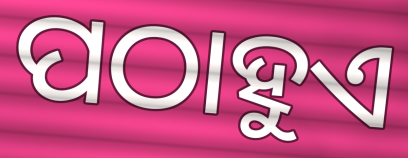
ପଠାହୁଏ